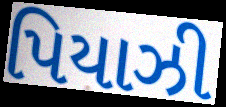
પિયાઝી